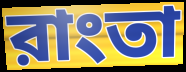
রাংতা